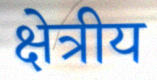
क्षेत्रीय